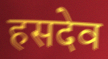
हसदेव